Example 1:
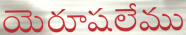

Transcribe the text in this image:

యెరూషలేము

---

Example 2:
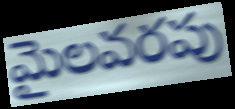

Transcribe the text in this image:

మైలవరపు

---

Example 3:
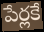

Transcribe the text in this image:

పేర్లకే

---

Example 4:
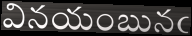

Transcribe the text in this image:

వినయంబునఁ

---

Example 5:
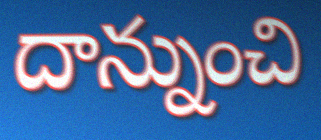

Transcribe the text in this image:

దాన్నుంచి